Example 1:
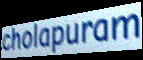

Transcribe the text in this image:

cholapuram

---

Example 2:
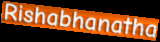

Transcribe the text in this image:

Rishabhanatha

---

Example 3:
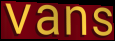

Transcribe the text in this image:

vans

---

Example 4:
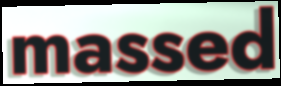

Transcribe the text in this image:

massed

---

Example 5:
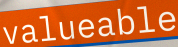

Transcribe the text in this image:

valueable